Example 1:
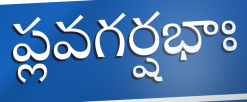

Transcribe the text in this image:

ప్లవగర్షభాః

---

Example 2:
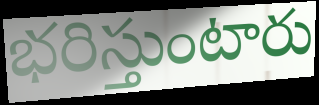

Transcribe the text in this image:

భరిస్తుంటారు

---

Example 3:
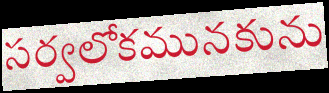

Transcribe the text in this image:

సర్వలోకమునకును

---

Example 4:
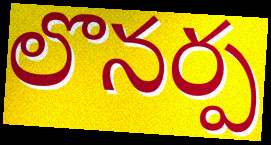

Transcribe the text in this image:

లొనర్ప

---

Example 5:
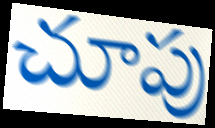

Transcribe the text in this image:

చూపు